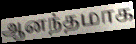
ஆனந்தமாக